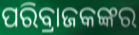
ପରିବ୍ରାଜକଙ୍କର